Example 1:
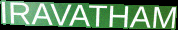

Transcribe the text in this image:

IRAVATHAM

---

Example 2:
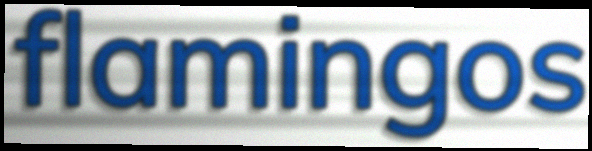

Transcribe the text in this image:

flamingos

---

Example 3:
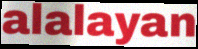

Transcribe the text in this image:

alalayan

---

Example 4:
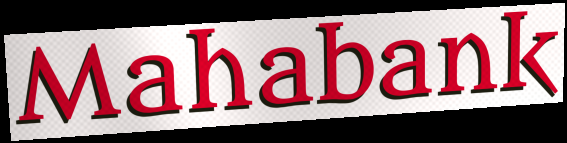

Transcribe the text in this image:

Mahabank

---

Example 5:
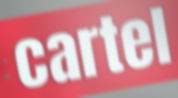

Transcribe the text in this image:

cartel